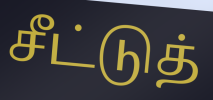
சீட்டுத்